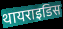
थायराइडिस